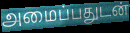
அமைப்பதுடன்